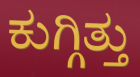
ಕುಗ್ಗಿತ್ತು